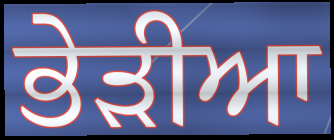
ਭੇੜੀਆ